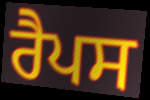
ਰੈਪਸ